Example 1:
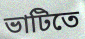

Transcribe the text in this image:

ভাটিতে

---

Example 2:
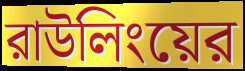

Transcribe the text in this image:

রাউলিংয়ের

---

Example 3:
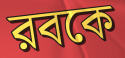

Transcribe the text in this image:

রবকে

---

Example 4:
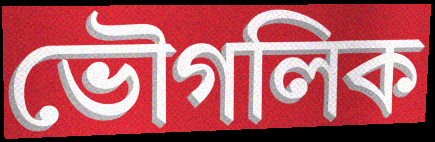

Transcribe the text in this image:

ভৌগলিক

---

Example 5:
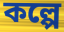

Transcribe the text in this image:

কল্পে